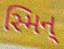
સ્મિન્